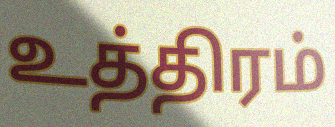
உத்திரம்